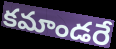
కమాండరే